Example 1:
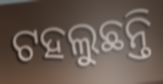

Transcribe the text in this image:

ଟହଲୁଛନ୍ତି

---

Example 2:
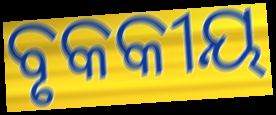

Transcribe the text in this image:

ବୃକକୀୟ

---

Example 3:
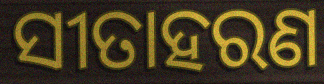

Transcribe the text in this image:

ସୀତାହରଣ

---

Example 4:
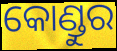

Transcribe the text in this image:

କୋଣ୍ଡୁର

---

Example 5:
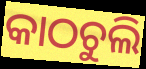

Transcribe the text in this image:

କାଠଚୁଲି